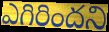
ఎగిరిందని